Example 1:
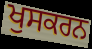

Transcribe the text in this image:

ਖੁਸਕਰਨ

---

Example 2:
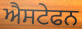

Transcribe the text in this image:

ਐਸਟੇਫਨ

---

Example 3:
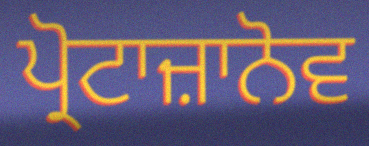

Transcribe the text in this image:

ਪ੍ਰੋਟਾਜ਼ਾਨੋਵ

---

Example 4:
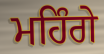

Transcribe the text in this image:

ਮਹਿੰਗੇ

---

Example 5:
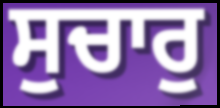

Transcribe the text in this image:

ਸੁਚਾਰੁ